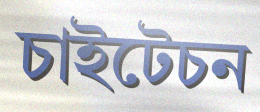
চাইটেচন